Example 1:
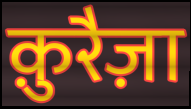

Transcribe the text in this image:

क़ुरैज़ा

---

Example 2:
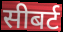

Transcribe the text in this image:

सीबर्ट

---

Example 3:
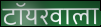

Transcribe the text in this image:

टॉयरवाला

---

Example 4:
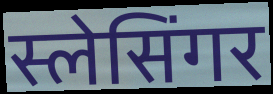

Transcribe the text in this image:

स्लेसिंगर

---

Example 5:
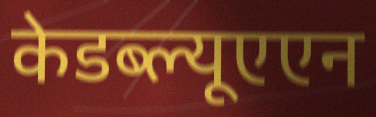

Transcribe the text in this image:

केडब्ल्यूएएन